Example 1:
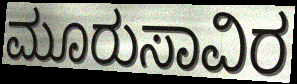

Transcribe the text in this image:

ಮೂರುಸಾವಿರ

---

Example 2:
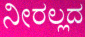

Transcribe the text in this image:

ನೀರಲ್ಲದ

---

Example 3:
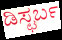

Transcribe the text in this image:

ಡಿಸ್ಟರ್ಬ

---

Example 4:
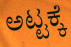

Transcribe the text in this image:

ಅಟ್ಟಕ್ಕೆ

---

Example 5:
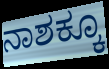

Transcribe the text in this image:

ನಾಶಕ್ಕೂ